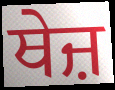
ਥੇਜ਼